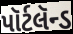
પૉર્ટલૅન્ડ